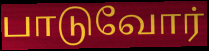
பாடுவோர்